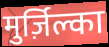
मुर्ज़िल्का